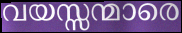
വയസ്സന്മാരെ